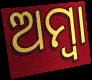
ଅମ୍ବା